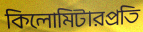
কিলোমিটারপ্রতি